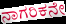
ನಾಗರಿಕನೇ